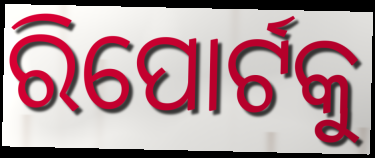
ରିପୋର୍ଟକୁ